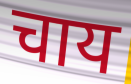
चाय